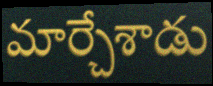
మార్చేశాడు